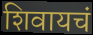
शिवायचं